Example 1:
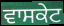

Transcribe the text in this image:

ਵਾਸਕੇਟ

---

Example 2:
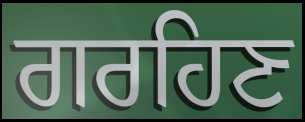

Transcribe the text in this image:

ਗਰਹਿਣ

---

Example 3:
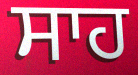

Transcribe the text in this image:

ਸਾਹ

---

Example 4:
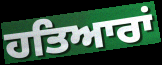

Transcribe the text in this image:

ਹਤਿਆਰਾਂ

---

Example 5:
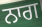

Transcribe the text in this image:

ਨਾਗ